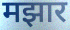
मझार